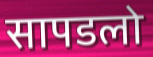
सापडलो